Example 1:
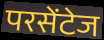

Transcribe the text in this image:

परसेंटेज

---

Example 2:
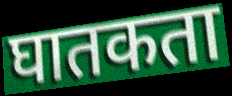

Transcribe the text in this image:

घातकता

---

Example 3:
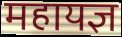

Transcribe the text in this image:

महायज्ञ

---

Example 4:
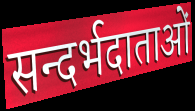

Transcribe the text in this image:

सन्दर्भदाताओं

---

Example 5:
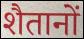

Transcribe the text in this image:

शैतानों